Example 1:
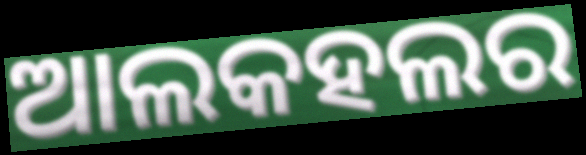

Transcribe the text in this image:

ଆଲକହଲର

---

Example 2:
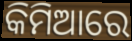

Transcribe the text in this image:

କିମିଆରେ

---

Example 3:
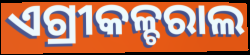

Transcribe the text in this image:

ଏଗ୍ରୀକଳ୍ଚରାଲ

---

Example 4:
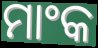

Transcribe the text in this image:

ମାଂକ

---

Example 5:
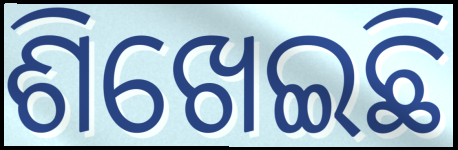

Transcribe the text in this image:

ଶିଖେଇଛି